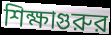
শিক্ষাগুরুর